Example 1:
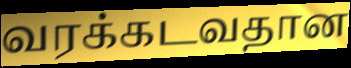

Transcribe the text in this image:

வரக்கடவதான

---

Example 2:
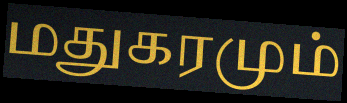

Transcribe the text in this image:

மதுகரமும்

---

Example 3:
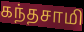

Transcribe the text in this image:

கந்தசாமி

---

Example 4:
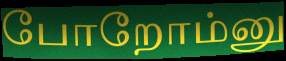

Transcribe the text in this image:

போறோம்னு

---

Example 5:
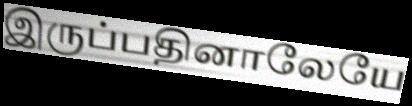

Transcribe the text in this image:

இருப்பதினாலேயே